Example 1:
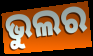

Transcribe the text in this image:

ଭୁଲର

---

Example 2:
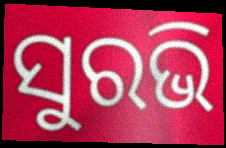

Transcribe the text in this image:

ସୁରଭି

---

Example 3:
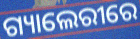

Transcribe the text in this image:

ଗ୍ୟାଲେରୀରେ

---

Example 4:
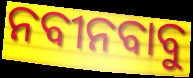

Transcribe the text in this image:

ନବୀନବାବୁ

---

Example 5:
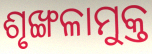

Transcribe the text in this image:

ଶୃଙ୍ଖଳାମୁକ୍ତ